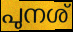
പുനശ്